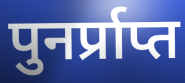
पुनर्प्राप्त